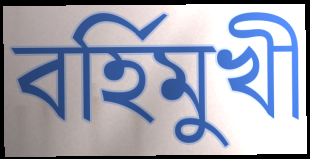
বর্হিমুখী